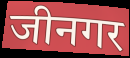
जीनगर